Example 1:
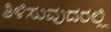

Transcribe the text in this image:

ತಿಳಿಸುವುದರಲ್ಲಿ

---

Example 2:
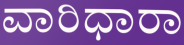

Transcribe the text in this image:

ವಾರಿಧಾರಾ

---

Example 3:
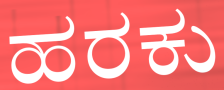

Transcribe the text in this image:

ಹರಕು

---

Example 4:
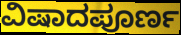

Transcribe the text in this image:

ವಿಷಾದಪೂರ್ಣ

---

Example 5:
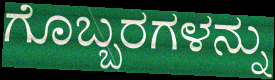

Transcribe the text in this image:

ಗೊಬ್ಬರಗಳನ್ನು